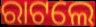
ରାଟଲେ